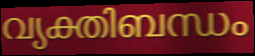
വ്യക്തിബന്ധം